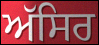
ਅੱਸਿਰ